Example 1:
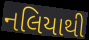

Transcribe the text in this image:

નલિયાથી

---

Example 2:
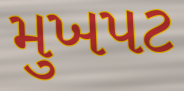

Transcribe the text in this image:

મુખપટ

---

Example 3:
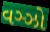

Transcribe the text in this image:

વઞ્ઝો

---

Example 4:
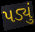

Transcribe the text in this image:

પડ્યું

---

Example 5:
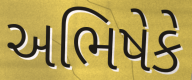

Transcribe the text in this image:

અભિષેકે